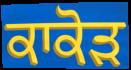
ਕਾਕੋੜ